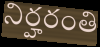
నిర్హరంతి